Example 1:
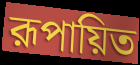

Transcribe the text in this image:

রূপায়িত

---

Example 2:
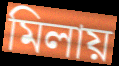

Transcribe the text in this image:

মিলায়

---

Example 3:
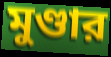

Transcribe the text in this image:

মুণ্ডার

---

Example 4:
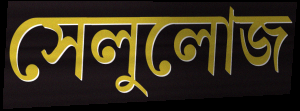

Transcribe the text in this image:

সেলুলোজ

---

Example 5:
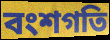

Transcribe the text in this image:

বংশগতি